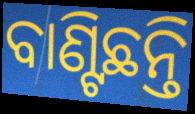
ବାଣ୍ଟିଛନ୍ତି